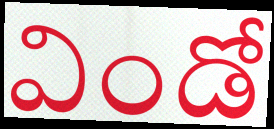
విండో